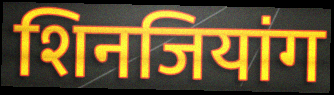
शिनजियांग